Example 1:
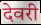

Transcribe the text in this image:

देवरी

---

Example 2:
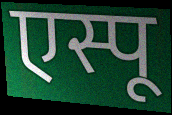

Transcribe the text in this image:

एस्पू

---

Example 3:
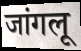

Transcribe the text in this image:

जांगलू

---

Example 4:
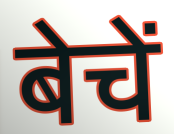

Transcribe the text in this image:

बेचें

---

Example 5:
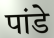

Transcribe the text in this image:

पांडे